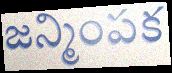
జన్మింపక